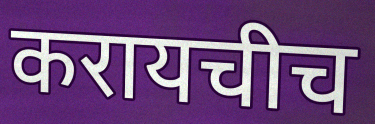
करायचीच